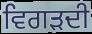
ਵਿਗੜਦੀ